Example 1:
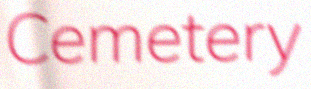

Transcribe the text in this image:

Cemetery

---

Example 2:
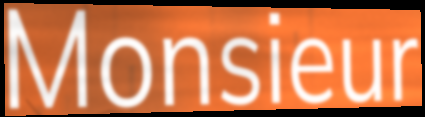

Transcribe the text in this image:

Monsieur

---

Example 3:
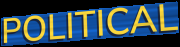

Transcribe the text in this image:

POLITICAL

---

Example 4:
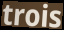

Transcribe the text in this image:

trois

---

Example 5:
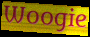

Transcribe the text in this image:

Woogie